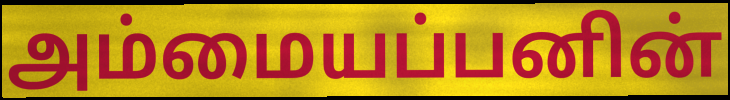
அம்மையப்பனின்